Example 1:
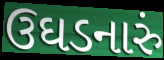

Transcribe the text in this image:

ઉઘડનારું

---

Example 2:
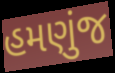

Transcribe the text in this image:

હમણુંજ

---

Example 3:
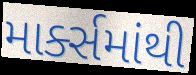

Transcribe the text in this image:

માર્ક્સમાંથી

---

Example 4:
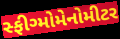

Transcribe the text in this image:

સ્ફીગ્મોમેનોમીટર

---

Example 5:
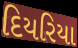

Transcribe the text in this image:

દિયરિયા